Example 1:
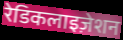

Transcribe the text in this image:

रेडिकलाइज़ेशन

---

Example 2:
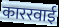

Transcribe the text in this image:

काररवाई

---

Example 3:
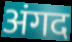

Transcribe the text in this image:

अंगद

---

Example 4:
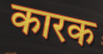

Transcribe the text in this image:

कारक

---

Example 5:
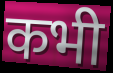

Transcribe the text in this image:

कभी